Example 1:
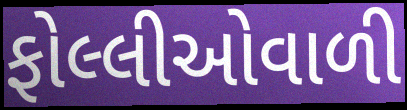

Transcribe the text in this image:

ફોલ્લીઓવાળી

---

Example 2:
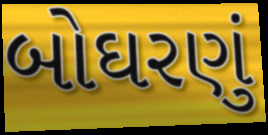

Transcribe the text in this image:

બોઘરણું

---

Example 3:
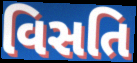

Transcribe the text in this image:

વિસતિ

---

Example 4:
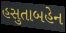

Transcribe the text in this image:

હસુતાબહેન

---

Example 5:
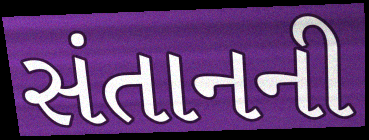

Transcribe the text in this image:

સંતાનની